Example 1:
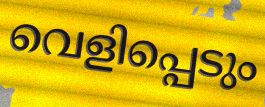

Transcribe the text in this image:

വെളിപ്പെടും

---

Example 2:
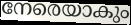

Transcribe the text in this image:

നേരെയാകും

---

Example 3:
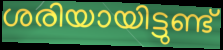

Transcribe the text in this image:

ശരിയായിട്ടുണ്ട്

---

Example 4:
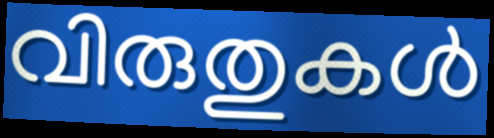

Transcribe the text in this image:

വിരുതുകൾ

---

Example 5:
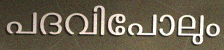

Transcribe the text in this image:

പദവിപോലും